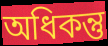
অধিকন্তু